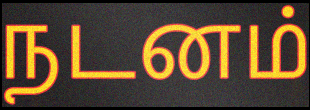
நடனம்